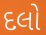
દલો